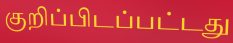
குறிப்பிடப்பட்டது